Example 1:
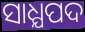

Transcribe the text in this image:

ସାଧ୍ଯପଦ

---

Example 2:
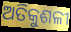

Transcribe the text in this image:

ଅତିକୁଶଳୀ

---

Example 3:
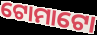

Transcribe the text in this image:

ଟୋମାଟୋ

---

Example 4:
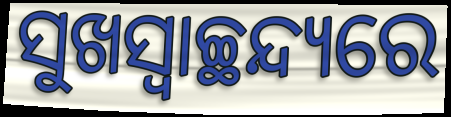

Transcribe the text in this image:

ସୁଖସ୍ଵାଚ୍ଛନ୍ଦ୍ୟରେ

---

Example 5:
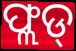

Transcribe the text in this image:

ଫ୍ଲଡ୍